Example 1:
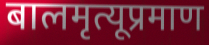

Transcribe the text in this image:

बालमृत्यूप्रमाण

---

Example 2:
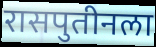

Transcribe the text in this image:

रासपुतीनला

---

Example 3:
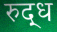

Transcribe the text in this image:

रुद्ध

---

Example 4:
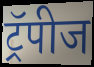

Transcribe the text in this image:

ट्रॅपीज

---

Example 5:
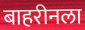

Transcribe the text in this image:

बाहरीनला